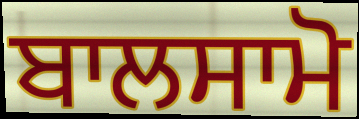
ਬਾਲਸਾਮੋ